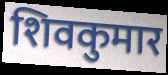
शिवकुमार